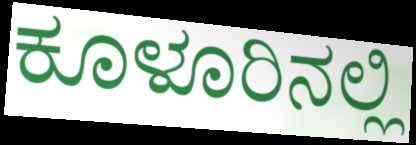
ಕೂಳೂರಿನಲ್ಲಿ